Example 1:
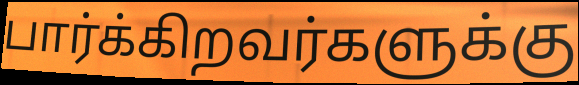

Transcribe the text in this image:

பார்க்கிறவர்களுக்கு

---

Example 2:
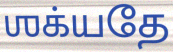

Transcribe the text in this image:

ஶக்யதே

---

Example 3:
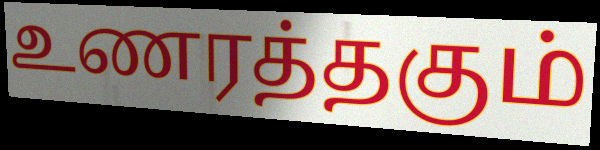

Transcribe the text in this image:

உணரத்தகும்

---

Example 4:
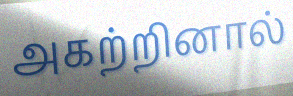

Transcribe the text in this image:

அகற்றினால்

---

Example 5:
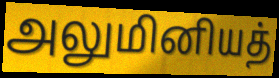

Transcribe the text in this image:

அலுமினியத்